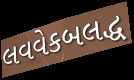
લવવેકબલદ્ધ